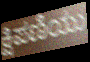
ಕ್ಷಿಪಣಿಯು